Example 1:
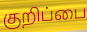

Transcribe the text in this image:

குறிப்பை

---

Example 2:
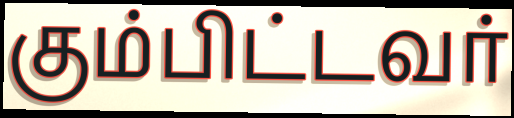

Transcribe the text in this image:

கும்பிட்டவர்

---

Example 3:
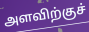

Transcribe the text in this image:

அளவிற்குச்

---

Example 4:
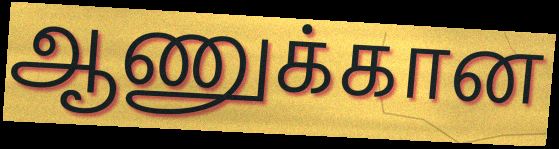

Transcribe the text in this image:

ஆணுக்கான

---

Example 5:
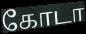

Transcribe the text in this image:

கோடா